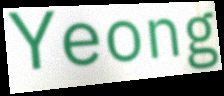
Yeong